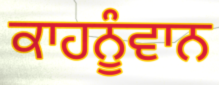
ਕਾਹਨੂੰਵਾਨ